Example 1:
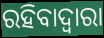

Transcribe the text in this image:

ରହିବାଦ୍ଵାରା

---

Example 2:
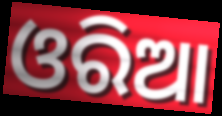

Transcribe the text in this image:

ଓରିଆ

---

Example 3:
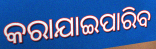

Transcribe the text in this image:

କରାଯାଇପାରିବ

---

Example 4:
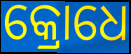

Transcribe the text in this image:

କ୍ରୋଧେ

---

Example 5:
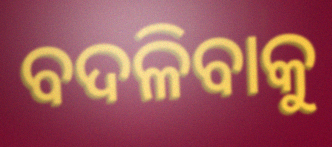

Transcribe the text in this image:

ବଦଳିବାକୁ